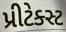
પ્રીટેક્સ્ટ